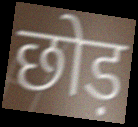
छोड़